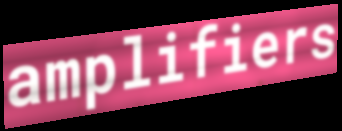
amplifiers